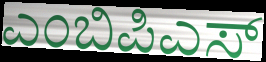
ಎಂಬಿಪಿಎಸ್